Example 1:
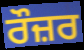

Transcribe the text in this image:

ਰੌਜ਼ਰ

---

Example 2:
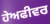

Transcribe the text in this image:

ਹੇਅਫੀਵਰ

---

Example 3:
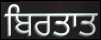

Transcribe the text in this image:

ਬਿਰਤਾਤ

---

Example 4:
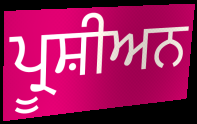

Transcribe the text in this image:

ਪ੍ਰੂਸ਼ੀਅਨ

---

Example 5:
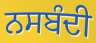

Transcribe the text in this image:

ਨਸਬੰਦੀ